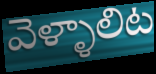
వెళ్ళాలిట